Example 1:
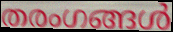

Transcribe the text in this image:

തരംഗങ്ങൾ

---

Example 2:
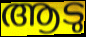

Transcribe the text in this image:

ആടു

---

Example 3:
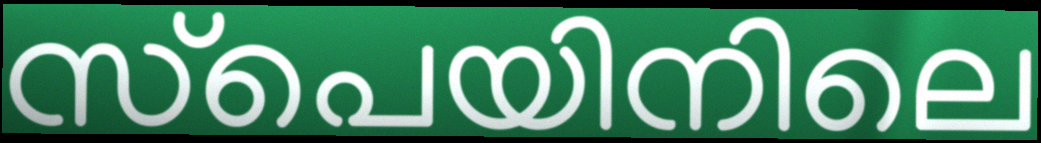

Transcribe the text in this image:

സ്‌പെയിനിലെ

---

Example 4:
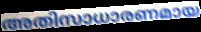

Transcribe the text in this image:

അതിസാധാരണമായ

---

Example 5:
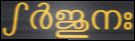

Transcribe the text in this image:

ഽർജുനഃ